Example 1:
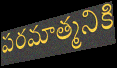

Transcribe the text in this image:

పరమాత్మనికి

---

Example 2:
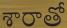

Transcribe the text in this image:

శారాతో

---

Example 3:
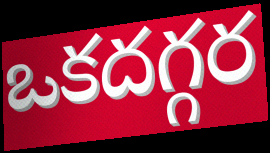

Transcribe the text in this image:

ఒకదగ్గర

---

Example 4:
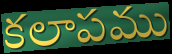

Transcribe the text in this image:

కలాపము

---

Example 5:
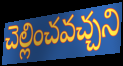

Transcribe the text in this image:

చెల్లించవచ్చని